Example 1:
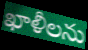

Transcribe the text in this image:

ఖాళీలను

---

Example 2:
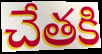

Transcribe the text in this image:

చేతకి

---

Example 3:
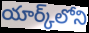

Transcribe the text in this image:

యార్క్‌లోని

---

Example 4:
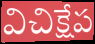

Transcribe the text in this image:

విచిక్షేప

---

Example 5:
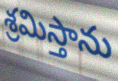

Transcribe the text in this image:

శ్రమిస్తాను